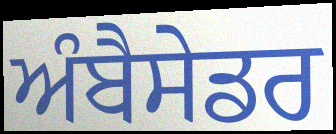
ਅੰਬੈਸੇਡਰ